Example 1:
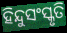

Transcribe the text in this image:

ହିନ୍ଦୁସଂସ୍କୃତି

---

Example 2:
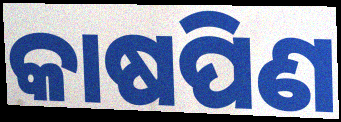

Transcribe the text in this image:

କାଷପିଣ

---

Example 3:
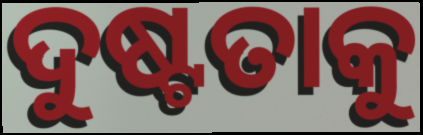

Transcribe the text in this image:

ଦୁଷ୍ଟତାକୁ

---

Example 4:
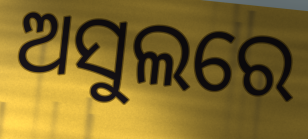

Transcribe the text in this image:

ଅସୁଲରେ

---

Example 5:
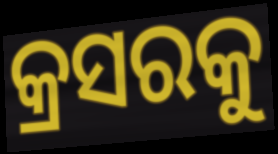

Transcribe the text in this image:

କ୍ରସରକୁ